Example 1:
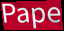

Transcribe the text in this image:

Pape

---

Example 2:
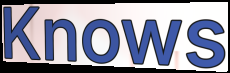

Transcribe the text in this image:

Knows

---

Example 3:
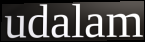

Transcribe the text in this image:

udalam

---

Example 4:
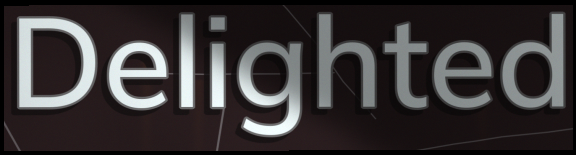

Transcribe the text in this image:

Delighted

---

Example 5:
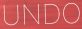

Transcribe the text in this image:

UNDO